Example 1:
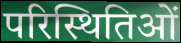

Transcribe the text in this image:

परिस्थितिओं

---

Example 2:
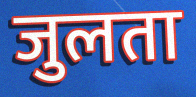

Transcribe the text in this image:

जुलता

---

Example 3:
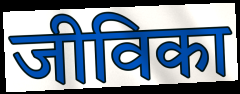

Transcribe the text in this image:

जीविका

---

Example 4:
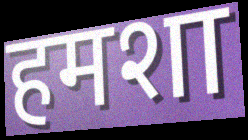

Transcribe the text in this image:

हमशा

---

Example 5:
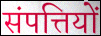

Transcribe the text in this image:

संपत्तियों